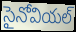
సైనోవియల్